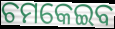
ଚମକେଇବ